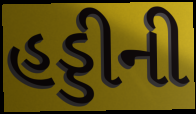
હડ્ડીની